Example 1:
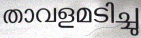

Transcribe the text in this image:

താവളമടിച്ചു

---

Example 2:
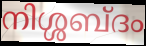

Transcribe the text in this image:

നിശ്ശബ്ദം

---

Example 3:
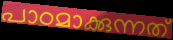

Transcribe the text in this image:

പാഠമാക്കുന്നത്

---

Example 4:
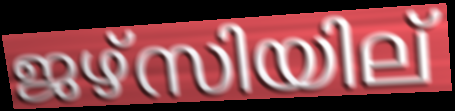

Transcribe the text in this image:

ജഴ്സിയില്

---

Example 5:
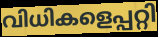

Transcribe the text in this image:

വിധികളെപ്പറ്റി